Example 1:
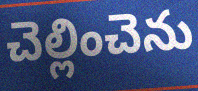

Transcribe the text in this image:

చెల్లించెను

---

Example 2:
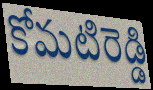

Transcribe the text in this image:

కోమటిరెడ్డి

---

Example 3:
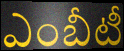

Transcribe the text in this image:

ఎంబీటీ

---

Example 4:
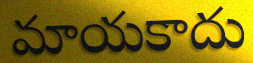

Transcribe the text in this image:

మాయకాదు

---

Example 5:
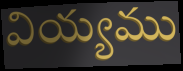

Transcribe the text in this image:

వియ్యము